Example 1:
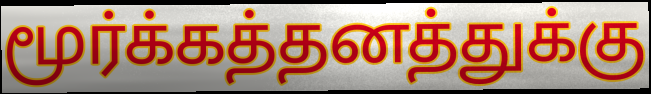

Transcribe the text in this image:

மூர்க்கத்தனத்துக்கு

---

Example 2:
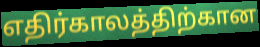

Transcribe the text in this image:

எதிர்காலத்திற்கான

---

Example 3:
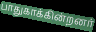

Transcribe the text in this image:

பாதுகாக்கின்றனர்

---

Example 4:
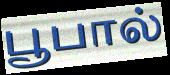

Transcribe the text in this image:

பூபால்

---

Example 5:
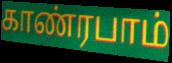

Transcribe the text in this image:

காண்ரபாம்